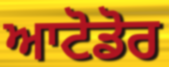
ਆਟੋਡੋਰ